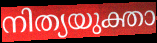
നിത്യയുക്താ